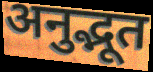
अनुद्भूत